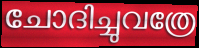
ചോദിച്ചുവത്രേ